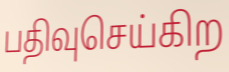
பதிவுசெய்கிற